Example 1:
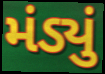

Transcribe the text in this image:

મંડ્યું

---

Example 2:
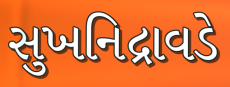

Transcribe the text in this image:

સુખનિદ્રાવડે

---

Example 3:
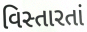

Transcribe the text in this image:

વિસ્તારતાં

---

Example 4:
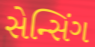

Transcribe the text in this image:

સેન્સિંગ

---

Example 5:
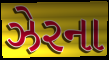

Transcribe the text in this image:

ઝેરના